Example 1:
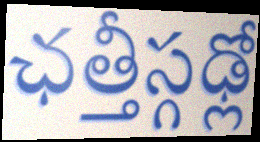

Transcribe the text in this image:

ఛత్తీస్గఢ్లో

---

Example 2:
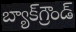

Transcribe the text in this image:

బ్యాక్‌గ్రౌండ్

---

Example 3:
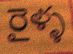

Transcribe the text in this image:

రైళ్ళ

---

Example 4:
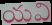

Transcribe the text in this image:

యవి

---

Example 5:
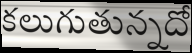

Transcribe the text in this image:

కలుగుతున్నదో